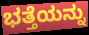
ಭತ್ತೆಯನ್ನು